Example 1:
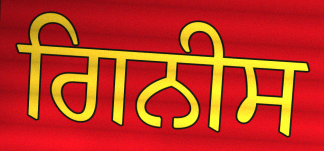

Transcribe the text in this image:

ਗਿਨੀਸ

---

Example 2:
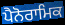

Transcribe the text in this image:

ਪੈਨੋਰਾਮਿਕ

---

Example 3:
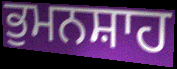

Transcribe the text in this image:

ਭੁਮਨਸ਼ਾਹ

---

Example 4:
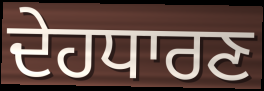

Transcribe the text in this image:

ਦੇਹਧਾਰਣ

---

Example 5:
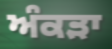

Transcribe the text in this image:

ਅੰਕੜਾ